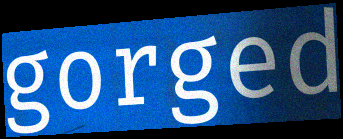
gorged